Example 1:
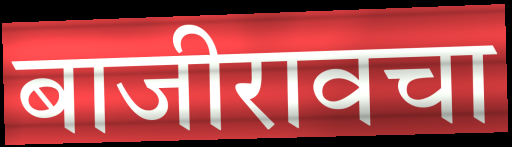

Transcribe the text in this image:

बाजीरावचा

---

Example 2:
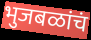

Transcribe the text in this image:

भुजबळांचं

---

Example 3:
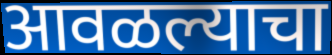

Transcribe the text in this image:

आवळल्याचा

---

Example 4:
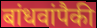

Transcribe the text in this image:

बांधवांपैकी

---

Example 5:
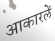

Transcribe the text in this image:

आकारलें